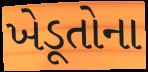
ખેડૂતોના